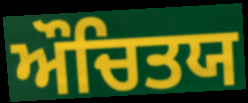
ਔਚਿਤਯ